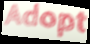
Adopt